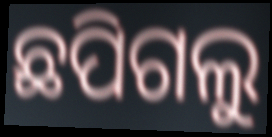
ଛପିଗଲୁ